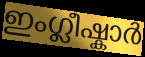
ഇംഗ്ലീഷ്കാർ